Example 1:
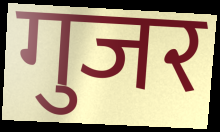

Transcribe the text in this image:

गुजर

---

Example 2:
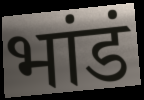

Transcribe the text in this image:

भांडं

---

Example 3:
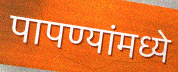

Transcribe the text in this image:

पापण्यांमध्ये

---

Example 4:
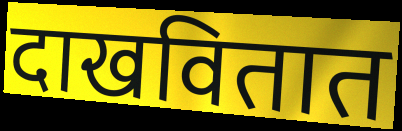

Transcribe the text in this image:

दाखवितात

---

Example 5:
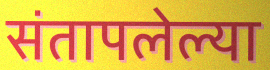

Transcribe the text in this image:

संतापलेल्या